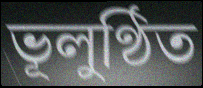
ভূলুণ্ঠিত